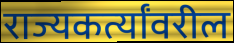
राज्यकर्त्यांवरील